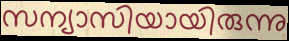
സന്യാസിയായിരുന്നു